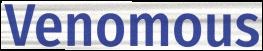
Venomous